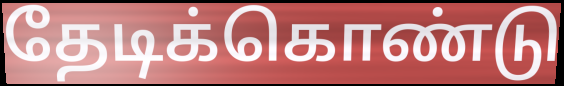
தேடிக்கொண்டு